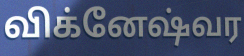
விக்னேஷ்வர